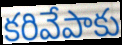
కరివేపాకు